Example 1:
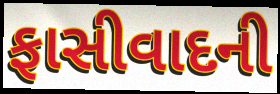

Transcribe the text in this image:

ફાસીવાદની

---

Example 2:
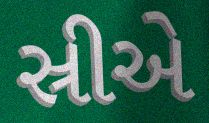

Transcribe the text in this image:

સ્રીએ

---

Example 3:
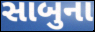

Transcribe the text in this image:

સાબુના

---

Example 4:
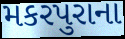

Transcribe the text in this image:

મકરપુરાના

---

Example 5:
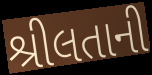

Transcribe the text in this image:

શ્રીલતાની